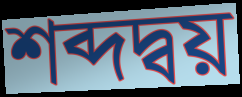
শব্দদ্বয়